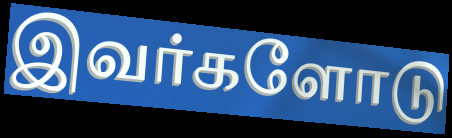
இவர்களோடு